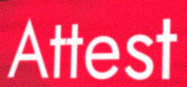
Attest